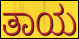
ತಾಯ